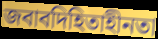
জবাবদিহিতাহীনতা